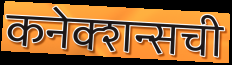
कनेक्शन्सची